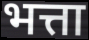
भत्ता